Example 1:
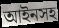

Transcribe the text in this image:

আইনসহ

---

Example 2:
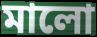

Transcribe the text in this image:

মালো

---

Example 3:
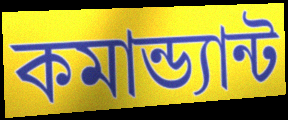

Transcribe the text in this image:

কমান্ড্যান্ট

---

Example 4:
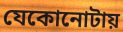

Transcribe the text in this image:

যেকোনোটায়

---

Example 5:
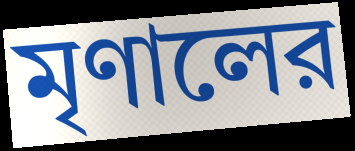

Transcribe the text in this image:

মৃণালের